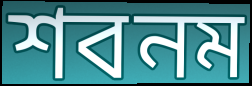
শবনম